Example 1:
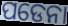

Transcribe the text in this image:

ପଡେନା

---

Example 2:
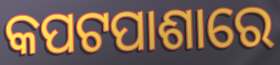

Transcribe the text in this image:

କପଟପାଶାରେ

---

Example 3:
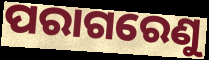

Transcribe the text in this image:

ପରାଗରେଣୁ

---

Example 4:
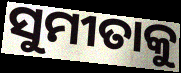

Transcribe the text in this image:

ସୁମୀତାକୁ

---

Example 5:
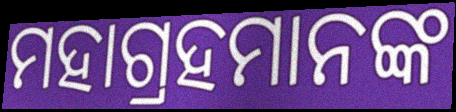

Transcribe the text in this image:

ମହାଗ୍ରହମାନଙ୍କ